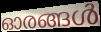
ഓരങ്ങൾ